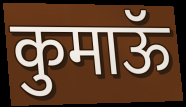
कुमाऊॅ